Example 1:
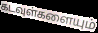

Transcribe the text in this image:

கடவுள்களையும்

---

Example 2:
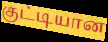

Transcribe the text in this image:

குட்டியான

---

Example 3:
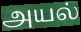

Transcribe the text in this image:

அயல்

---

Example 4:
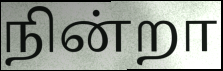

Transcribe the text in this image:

நின்றா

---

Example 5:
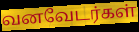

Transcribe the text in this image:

வனவேடர்கள்